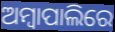
ଅମ୍ବାପାଲିରେ